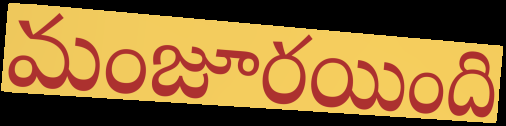
మంజూరయింది